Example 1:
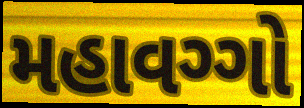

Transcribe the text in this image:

મહાવગ્ગો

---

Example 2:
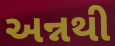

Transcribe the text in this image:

અન્નથી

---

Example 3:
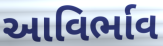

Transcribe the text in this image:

આવિર્ભાવ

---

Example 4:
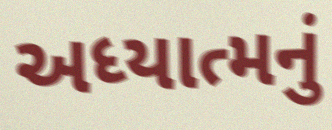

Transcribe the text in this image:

અધ્યાત્મનું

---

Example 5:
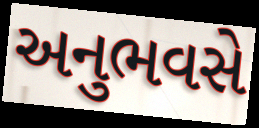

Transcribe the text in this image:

અનુભવસે